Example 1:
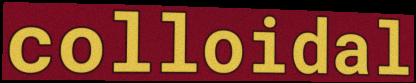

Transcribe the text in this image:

colloidal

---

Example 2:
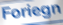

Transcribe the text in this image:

Foriegn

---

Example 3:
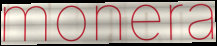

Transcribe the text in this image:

monera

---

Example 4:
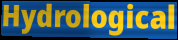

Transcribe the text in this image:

Hydrological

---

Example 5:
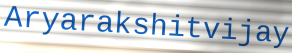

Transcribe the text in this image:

Aryarakshitvijay